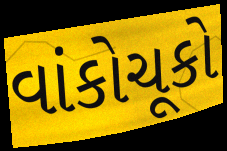
વાંકોચૂકો